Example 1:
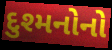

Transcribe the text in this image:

દુશ્મનોનો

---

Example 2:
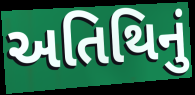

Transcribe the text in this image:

અતિથિનું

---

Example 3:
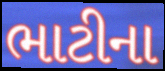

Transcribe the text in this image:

ભાટીના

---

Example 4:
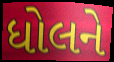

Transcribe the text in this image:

ધોલને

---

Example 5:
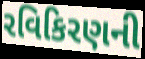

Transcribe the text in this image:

રવિકિરણની